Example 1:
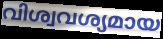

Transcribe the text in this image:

വിശ്വവശ്യമായ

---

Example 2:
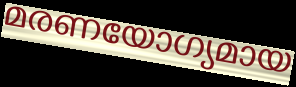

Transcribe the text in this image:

മരണയോഗ്യമായ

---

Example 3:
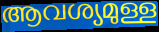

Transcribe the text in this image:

ആവശ്യമുള്ള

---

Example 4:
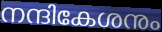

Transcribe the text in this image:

നന്ദികേശനും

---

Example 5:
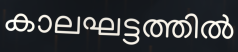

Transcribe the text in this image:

കാലഘട്ടത്തിൽ